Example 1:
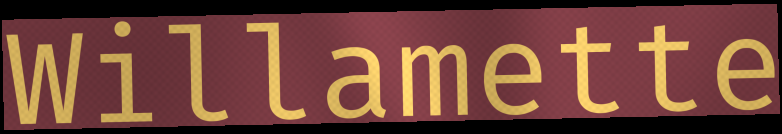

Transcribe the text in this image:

Willamette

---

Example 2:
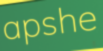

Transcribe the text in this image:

apshe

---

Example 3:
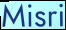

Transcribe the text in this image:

Misri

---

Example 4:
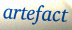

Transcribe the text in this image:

artefact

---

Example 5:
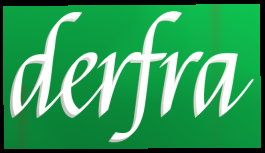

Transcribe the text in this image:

derfra